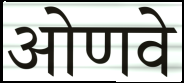
ओणवे